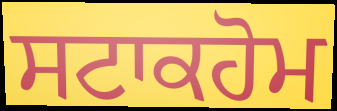
ਸਟਾਕਹੋਮ